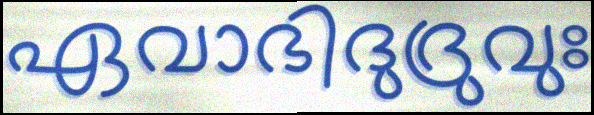
ഏവാഭിദുദ്രുവുഃ